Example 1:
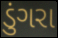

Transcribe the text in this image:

ડુંગરા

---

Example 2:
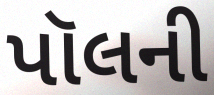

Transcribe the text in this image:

પૉલની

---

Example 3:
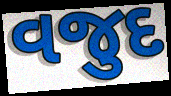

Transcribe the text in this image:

વજુદ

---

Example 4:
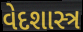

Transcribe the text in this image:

વેદશાસ્ત્ર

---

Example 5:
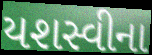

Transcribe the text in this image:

યશસ્વીના